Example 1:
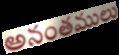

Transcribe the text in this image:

అనంతములు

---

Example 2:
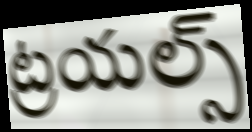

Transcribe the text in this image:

ట్రయల్స్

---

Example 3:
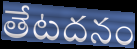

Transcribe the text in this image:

తేటదనం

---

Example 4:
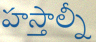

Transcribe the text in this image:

హస్తాల్నీ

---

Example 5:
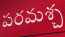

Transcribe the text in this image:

పరమశ్చ